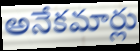
అనేకమార్లు